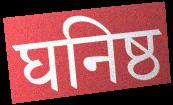
घनिष्ठ